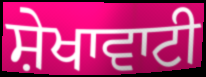
ਸ਼ੇਖਾਵਾਟੀ